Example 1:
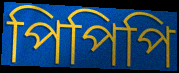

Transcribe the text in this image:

পিপিপি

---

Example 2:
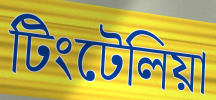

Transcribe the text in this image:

টিংটেলিয়া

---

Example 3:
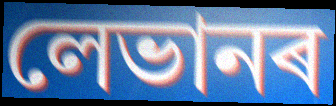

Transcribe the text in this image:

লেভানৰ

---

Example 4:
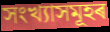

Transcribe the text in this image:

সংখ্যাসমূহৰ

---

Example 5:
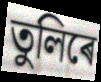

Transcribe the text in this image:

তুলিৰে